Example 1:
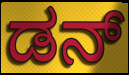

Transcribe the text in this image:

ಡನ್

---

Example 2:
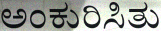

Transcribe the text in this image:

ಅಂಕುರಿಸಿತು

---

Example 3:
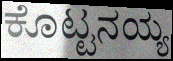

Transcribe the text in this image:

ಕೊಟ್ಟನಯ್ಯ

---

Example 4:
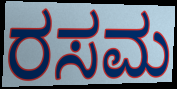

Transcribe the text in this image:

ರಸಮ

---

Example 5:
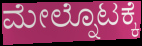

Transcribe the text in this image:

ಮೇಲ್ನೊಟಕ್ಕೆ